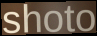
shoto